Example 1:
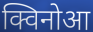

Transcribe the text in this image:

क्विनोआ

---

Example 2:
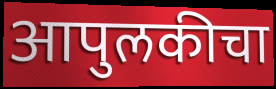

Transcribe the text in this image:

आपुलकीचा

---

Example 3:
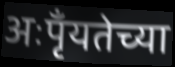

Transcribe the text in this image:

अःपृँयतेच्या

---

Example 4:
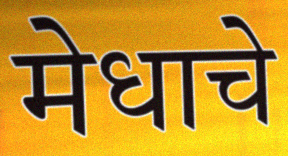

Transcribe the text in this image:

मेधाचे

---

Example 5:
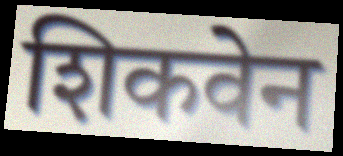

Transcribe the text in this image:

शिकवेन